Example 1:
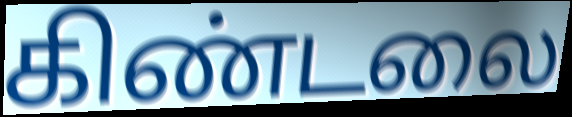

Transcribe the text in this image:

கிண்டலை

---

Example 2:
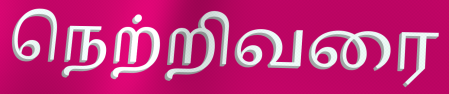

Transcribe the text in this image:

நெற்றிவரை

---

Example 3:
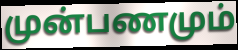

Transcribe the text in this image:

முன்பணமும்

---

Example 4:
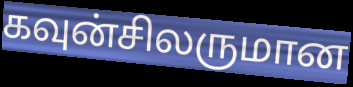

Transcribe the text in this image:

கவுன்சிலருமான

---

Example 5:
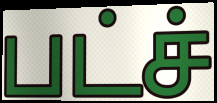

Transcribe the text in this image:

பட்ச்